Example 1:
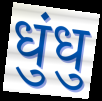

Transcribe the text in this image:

धुंधु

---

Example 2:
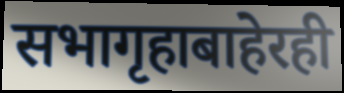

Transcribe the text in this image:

सभागृहाबाहेरही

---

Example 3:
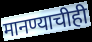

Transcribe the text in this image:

मानण्याचीही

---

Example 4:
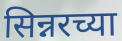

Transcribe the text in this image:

सिन्नरच्या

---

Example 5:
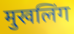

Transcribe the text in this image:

मुखलिंग